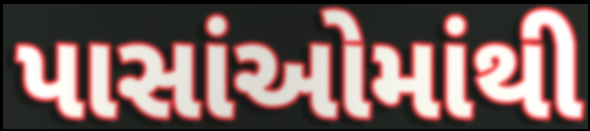
પાસાંઓમાંથી